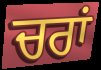
ਚਰਾਂ